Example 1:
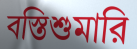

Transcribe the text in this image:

বস্তিশুমারি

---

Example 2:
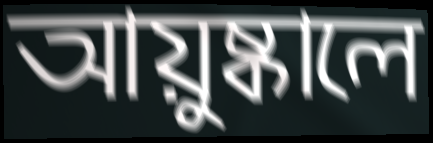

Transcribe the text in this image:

আয়ুষ্কালে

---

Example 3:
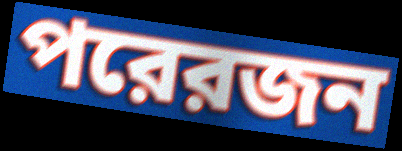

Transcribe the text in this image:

পরেরজন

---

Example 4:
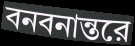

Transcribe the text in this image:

বনবনান্তরে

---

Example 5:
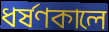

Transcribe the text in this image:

ধর্ষণকালে